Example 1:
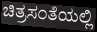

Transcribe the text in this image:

ಚಿತ್ರಸಂತೆಯಲ್ಲಿ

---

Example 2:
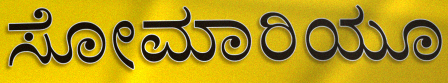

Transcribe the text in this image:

ಸೋಮಾರಿಯೂ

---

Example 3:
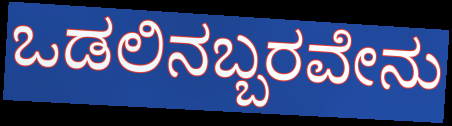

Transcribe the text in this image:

ಒಡಲಿನಬ್ಬರವೇನು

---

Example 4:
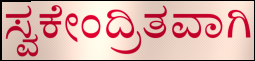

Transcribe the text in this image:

ಸ್ವಕೇಂದ್ರಿತವಾಗಿ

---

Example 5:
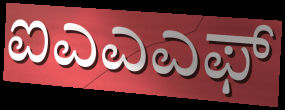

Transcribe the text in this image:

ಐಎಎಎಫ್